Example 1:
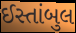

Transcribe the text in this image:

ઈસ્તાંબુલ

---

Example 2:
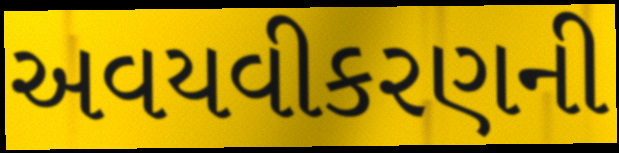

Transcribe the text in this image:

અવયવીકરણની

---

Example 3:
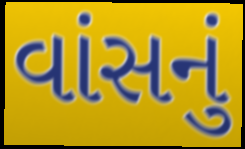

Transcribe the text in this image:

વાંસનું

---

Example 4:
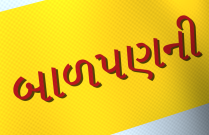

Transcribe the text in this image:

બાળપણની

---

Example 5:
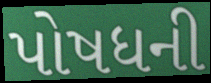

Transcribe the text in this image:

પોષધની